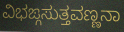
ವಿಭಙ್ಗಸುತ್ತವಣ್ಣನಾ